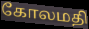
கோலமதி